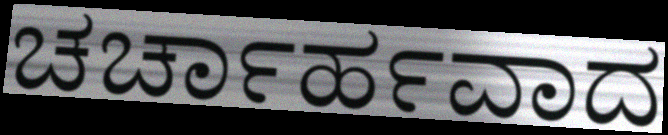
ಚರ್ಚಾರ್ಹವಾದ